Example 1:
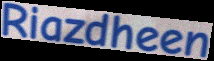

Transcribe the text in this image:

Riazdheen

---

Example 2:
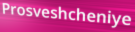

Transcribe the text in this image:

Prosveshcheniye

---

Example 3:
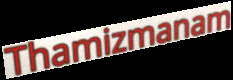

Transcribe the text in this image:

Thamizmanam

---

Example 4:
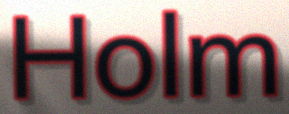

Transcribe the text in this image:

Holm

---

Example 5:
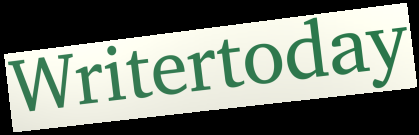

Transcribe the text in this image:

Writertoday